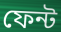
ফেন্ট